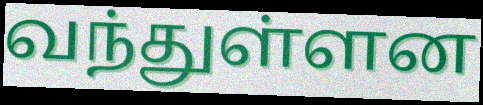
வந்துள்ளன